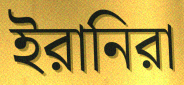
ইরানিরা